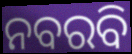
ନବରବି